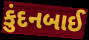
કુંદનબાઈ